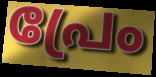
പ്രേം